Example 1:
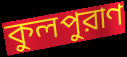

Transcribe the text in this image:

কুলপুরাণ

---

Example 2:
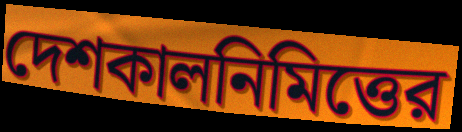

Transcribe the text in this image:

দেশকালনিমিত্তের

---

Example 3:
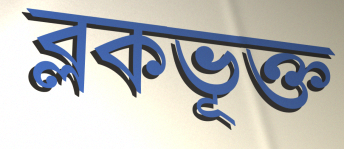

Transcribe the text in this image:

ব্লকভূক্ত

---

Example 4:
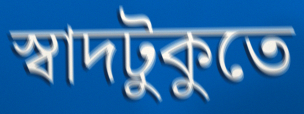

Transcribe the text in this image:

স্বাদটুকুতে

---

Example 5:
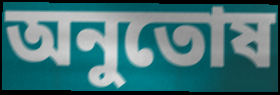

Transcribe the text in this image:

অনুতোষ